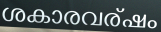
ശകാരവര്ഷം